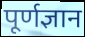
पूर्णज्ञान